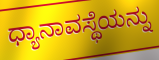
ಧ್ಯಾನಾವಸ್ಥೆಯನ್ನು